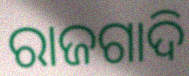
ରାଜଗାଦି